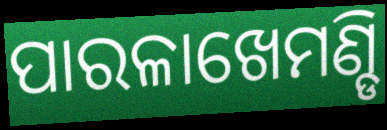
ପାରଳାଖେମଣ୍ଡି